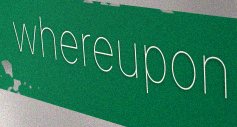
whereupon